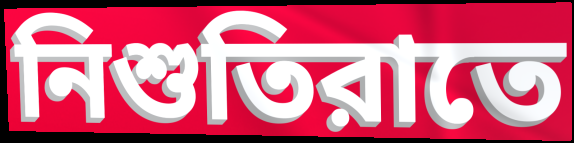
নিশুতিরাতে